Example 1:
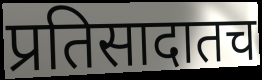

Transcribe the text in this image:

प्रतिसादातच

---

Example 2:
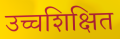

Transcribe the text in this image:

उच्चशिक्षित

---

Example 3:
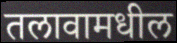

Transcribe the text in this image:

तलावामधील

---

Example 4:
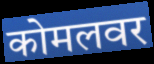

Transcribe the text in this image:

कोमलवर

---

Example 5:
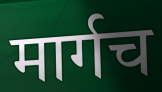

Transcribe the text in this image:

मार्गच